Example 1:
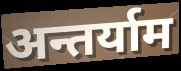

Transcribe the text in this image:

अन्तर्याम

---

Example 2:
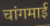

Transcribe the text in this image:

चांगमाई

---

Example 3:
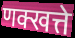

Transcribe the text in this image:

णक्खत्ते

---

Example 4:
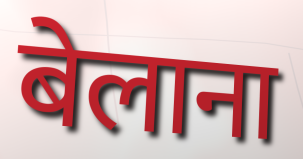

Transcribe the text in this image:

बेलाना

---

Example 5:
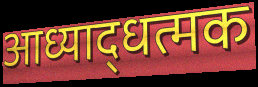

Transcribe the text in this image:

आध्याद्धत्मक